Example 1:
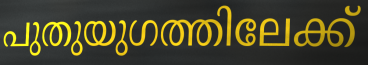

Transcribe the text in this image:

പുതുയുഗത്തിലേക്ക്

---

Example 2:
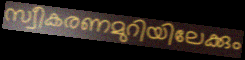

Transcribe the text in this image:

സ്വീകരണമുറിയിലേക്കും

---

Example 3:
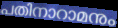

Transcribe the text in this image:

പതിനാറാമനും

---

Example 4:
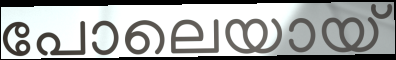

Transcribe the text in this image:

പോലെയായ്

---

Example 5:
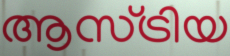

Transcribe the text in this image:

ആസ്ട്രിയ